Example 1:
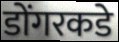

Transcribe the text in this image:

डोंगरकडे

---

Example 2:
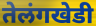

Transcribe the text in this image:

तेलंगखेडी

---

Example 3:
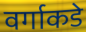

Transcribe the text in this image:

वर्गाकडे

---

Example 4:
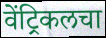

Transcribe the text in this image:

वेंट्रिकलचा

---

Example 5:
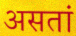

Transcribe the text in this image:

असतां